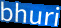
bhuri